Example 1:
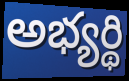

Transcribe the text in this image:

అభ్యర్థి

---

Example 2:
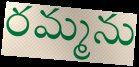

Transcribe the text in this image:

రమ్మను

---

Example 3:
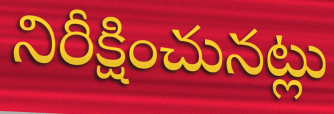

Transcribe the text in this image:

నిరీక్షించునట్లు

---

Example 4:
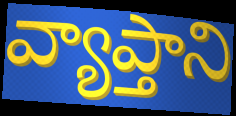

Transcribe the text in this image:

వ్యాప్తాని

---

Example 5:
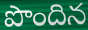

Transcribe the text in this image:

పొందిన